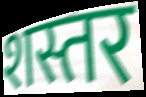
शस्तर